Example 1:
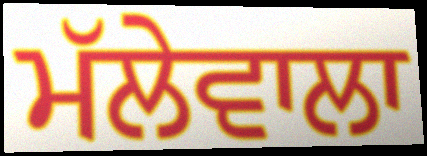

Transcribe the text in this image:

ਮੱਲੇਵਾਲਾ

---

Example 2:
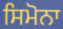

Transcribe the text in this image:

ਸਿਮੋਨਾ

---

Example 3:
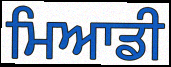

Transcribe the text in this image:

ਮਿਆਡੀ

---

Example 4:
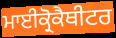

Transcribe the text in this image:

ਮਾਈਕ੍ਰੋਕੈਥੀਟਰ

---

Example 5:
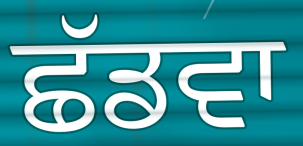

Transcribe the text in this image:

ਛੱਡਵਾ